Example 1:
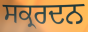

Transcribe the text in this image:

ਸਕ੍ਰਰਦਨ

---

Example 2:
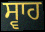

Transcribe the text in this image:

ਸ੍ਵਾਹ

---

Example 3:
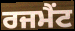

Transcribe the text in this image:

ਰਜਮੈਂਟ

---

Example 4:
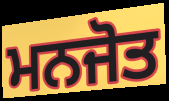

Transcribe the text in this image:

ਮਨਜੋਤ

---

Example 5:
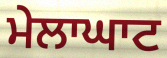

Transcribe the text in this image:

ਮੇਲਾਘਾਟ